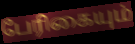
பேரிகையும்